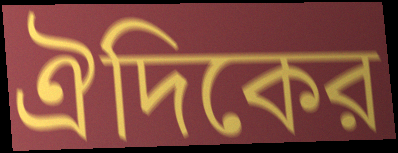
ঐদিকের